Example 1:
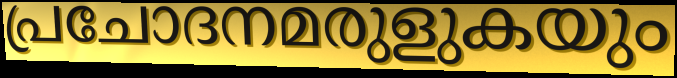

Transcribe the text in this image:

പ്രചോദനമരുളുകയും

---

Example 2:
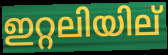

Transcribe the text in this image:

ഇറ്റലിയില്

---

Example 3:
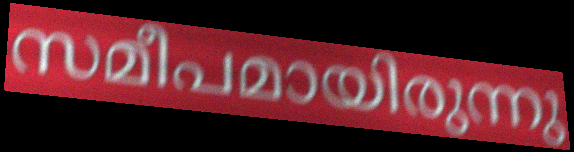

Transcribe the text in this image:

സമീപമായിരുന്നു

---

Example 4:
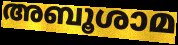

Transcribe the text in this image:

അബൂശാമ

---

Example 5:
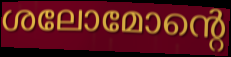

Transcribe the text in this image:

ശലോമോന്റെ